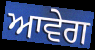
ਆਵੇਗ